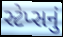
સ્ટેપ્સનું